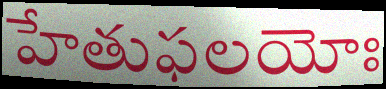
హేతుఫలయోః